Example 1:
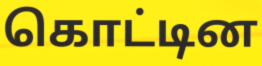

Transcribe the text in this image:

கொட்டின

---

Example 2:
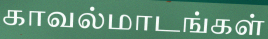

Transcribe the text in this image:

காவல்மாடங்கள்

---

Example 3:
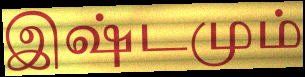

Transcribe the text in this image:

இஷ்டமும்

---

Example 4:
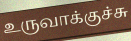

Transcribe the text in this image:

உருவாக்குச்சு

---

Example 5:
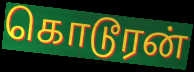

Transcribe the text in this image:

கொடூரன்